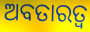
ଅବତାରତ୍ୱ